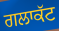
ਗਲਾਕੱਟ